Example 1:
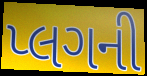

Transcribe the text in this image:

પ્લગની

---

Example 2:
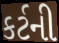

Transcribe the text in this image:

કર્ટની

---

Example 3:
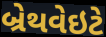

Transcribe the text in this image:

બ્રેથવેઇટે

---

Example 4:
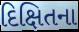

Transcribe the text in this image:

દિક્ષિતના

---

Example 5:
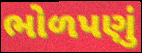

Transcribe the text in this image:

ભોળપણું